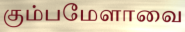
கும்பமேளாவை